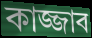
কাজ্জাব